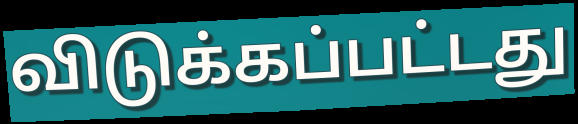
விடுக்கப்பட்டது